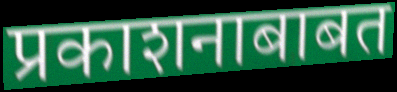
प्रकाशनाबाबत